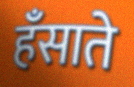
हँसाते